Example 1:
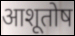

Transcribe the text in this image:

आशूतोष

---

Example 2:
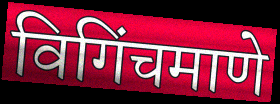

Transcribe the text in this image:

विगिंचमाणे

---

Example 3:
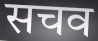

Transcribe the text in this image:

सचव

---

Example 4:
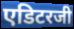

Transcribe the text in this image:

एडिटरजी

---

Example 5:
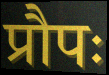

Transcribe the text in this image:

प्रौपः